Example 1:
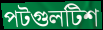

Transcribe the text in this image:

পটগুলটিশ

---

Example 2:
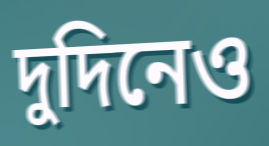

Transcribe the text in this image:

দুদিনেও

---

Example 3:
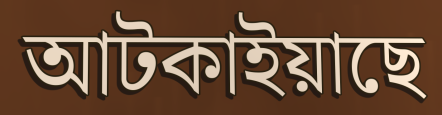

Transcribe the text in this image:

আটকাইয়াছে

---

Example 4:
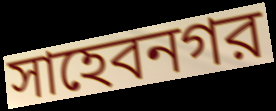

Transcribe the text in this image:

সাহেবনগর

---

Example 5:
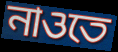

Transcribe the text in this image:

নাওতে